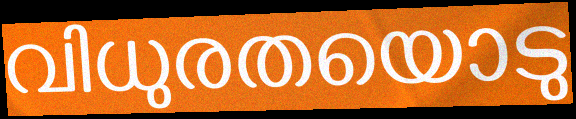
വിധുരതയൊടു